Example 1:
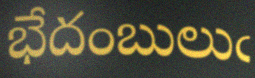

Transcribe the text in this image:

భేదంబులుఁ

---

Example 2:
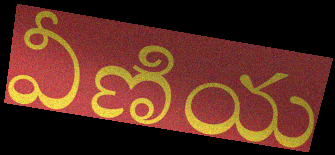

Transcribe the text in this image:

వీణియ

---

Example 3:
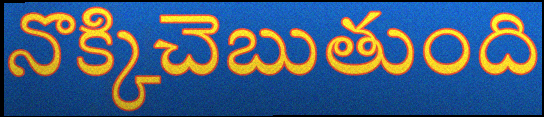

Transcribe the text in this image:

నొక్కిచెబుతుంది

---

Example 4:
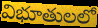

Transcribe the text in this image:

విభూతులలో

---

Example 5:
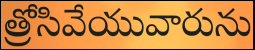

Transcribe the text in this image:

త్రోసివేయువారును